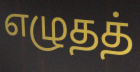
எழுதத்